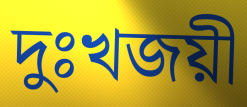
দুঃখজয়ী